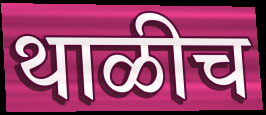
थाळीच